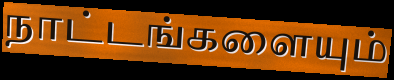
நாட்டங்களையும்